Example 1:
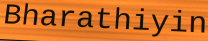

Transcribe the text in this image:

Bharathiyin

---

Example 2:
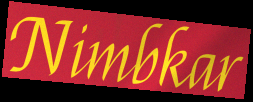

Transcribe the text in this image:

Nimbkar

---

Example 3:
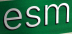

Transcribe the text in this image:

esm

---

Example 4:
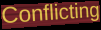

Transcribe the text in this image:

Conflicting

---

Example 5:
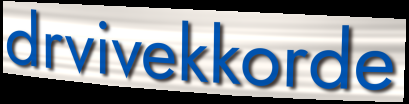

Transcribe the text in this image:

drvivekkorde